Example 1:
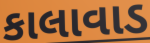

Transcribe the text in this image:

કાલાવાડ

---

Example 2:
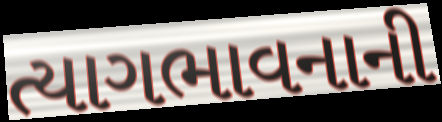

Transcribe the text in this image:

ત્યાગભાવનાની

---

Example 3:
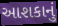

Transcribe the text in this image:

આશકાનું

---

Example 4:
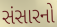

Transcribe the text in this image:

સંસારનો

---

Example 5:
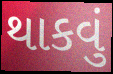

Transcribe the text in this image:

થાકવું